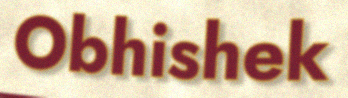
Obhishek